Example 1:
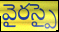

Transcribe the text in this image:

వైరస్పై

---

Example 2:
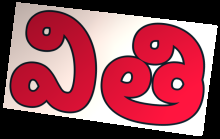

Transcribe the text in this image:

వితి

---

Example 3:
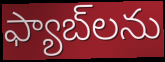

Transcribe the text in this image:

ఫ్యాబ్‌లను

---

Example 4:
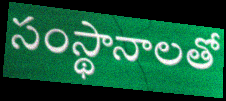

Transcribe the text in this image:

సంస్థానాలతో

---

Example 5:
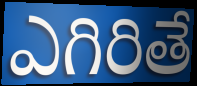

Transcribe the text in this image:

ఎగిరితే